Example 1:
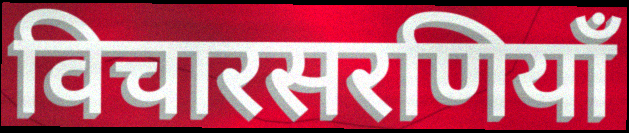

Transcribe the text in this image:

विचारसरणियाँ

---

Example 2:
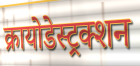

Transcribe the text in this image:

क्रायोडेस्ट्रक्शन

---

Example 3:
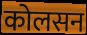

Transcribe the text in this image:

कोलसन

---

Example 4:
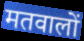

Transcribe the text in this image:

मतवालों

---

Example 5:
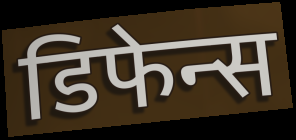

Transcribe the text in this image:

डिफेन्स